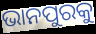
ଭାନପୁରକୁ